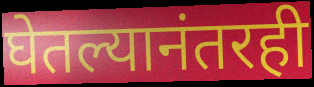
घेतल्यानंतरही